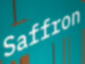
Saffron